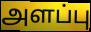
அளப்பு